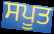
ਸਪੂਤ